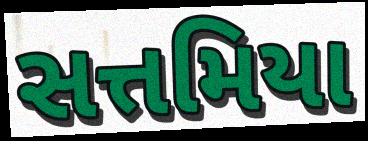
સત્તમિયા